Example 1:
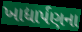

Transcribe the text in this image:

ખાદ્યાર્પણના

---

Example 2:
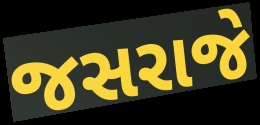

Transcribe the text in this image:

જસરાજે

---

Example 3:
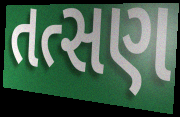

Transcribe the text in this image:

તત્સણ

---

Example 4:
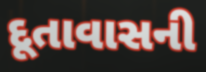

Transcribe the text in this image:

દૂતાવાસની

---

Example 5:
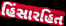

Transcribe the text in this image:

હિંસારહિત